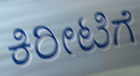
ಕಿರೀಟಿಗೆ